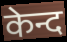
केन्द